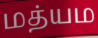
மத்யம